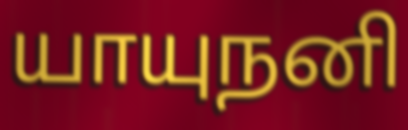
யாயுநனி